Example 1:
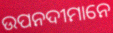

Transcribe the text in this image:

ଉପନଦୀମାନେ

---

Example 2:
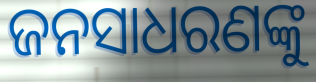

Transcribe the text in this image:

ଜନସାଧରଣଙ୍କୁ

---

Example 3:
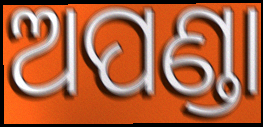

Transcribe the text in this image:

ଅପଣ୍ଡା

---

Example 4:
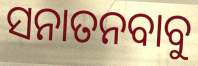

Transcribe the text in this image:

ସନାତନବାବୁ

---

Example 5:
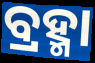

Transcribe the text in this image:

ବ୍ରହ୍ମା